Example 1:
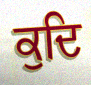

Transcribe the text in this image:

ਕੁਦਿ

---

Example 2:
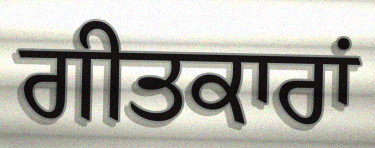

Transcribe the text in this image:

ਗੀਤਕਾਰਾਂ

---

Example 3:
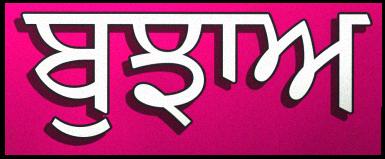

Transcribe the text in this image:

ਬੁਝਾਅ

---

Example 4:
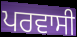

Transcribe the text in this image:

ਪਰਵਾਸੀ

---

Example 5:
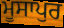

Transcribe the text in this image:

ਮੂਸਾਪੁਰ